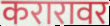
करारावर